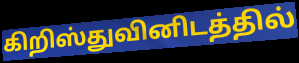
கிறிஸ்துவினிடத்தில்